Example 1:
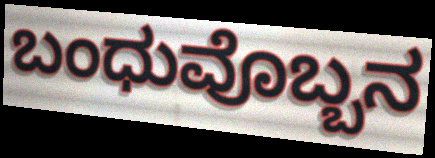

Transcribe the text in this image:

ಬಂಧುವೊಬ್ಬನ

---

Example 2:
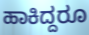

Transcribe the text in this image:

ಹಾಕಿದ್ದರೂ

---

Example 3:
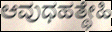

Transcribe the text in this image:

ಆವುಧಹತ್ಥೇಹಿ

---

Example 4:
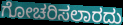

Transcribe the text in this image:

ಗೋಚರಿಸಲಾರದು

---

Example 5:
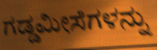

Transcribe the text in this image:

ಗಡ್ಡಮೀಸೆಗಳನ್ನು